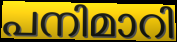
പനിമാറി